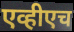
एव्हीएच